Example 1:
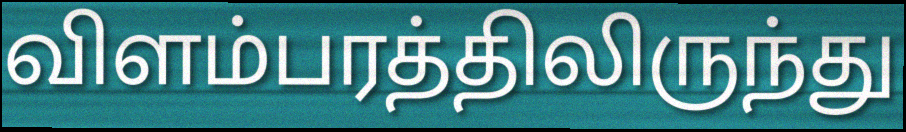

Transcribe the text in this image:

விளம்பரத்திலிருந்து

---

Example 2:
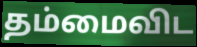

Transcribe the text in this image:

தம்மைவிட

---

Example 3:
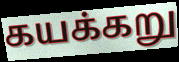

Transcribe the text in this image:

கயக்கறு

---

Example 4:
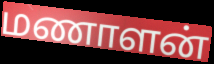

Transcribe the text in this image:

மணாளன்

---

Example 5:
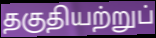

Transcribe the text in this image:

தகுதியற்றுப்